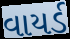
વાયર્ડ